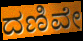
ದಣಿವೇ